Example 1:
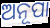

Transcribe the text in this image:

ଅନୂପା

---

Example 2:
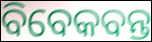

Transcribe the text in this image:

ବିବେକବନ୍ତ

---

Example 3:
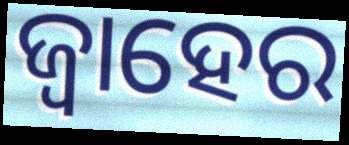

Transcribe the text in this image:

ଜ୍ୱାହେର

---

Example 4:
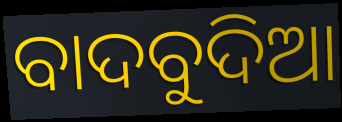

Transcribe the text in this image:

ବାଦବୁଦିଆ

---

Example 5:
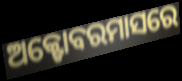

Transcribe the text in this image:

ଅକ୍ଟୋବରମାସରେ